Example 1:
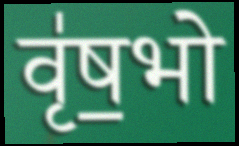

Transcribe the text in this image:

वृ॑ष॒भो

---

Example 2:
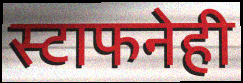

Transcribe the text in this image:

स्टाफनेही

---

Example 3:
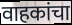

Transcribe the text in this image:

वाहकांचा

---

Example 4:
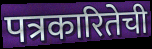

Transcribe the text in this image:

पत्रकारितेची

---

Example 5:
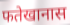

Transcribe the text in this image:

फतेखानास